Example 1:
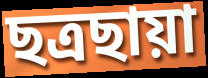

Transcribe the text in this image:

ছত্রছায়া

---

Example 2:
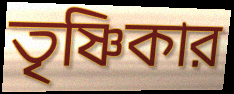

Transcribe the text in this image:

তৃষ্ণিকার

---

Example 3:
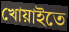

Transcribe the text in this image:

খোয়াইতে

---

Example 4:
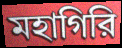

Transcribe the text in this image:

মহাগিরি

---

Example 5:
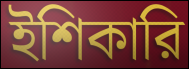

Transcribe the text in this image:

ইশিকারি